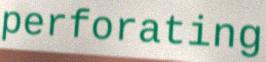
perforating